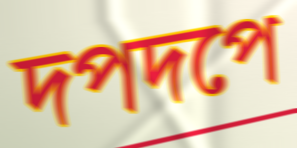
দপদপে